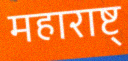
महाराष्ट्